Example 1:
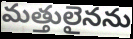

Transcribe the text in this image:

మత్తులైనను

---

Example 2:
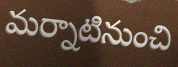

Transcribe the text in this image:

మర్నాటినుంచి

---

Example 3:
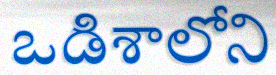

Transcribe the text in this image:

ఒడిశాలోని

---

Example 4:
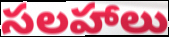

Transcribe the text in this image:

సలహాలు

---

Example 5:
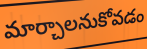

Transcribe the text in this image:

మార్చాలనుకోవడం